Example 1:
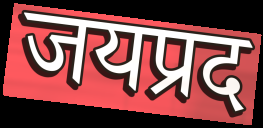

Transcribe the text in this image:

जयप्रद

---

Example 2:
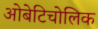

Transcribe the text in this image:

ओबेटिचोलिक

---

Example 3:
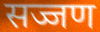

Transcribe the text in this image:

सज्जण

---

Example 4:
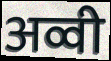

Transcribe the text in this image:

अव्वी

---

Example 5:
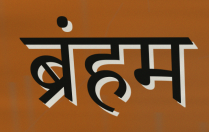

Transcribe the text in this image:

ब्रंहम